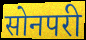
सोनपरी